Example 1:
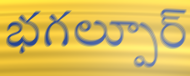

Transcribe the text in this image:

భగల్పూర్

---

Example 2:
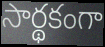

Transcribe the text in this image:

సార్థకంగా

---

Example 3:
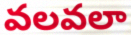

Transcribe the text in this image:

వలవలా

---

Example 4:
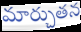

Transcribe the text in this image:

మార్చుతన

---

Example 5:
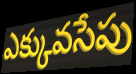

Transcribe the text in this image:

ఎక్కువసేపు